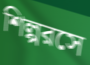
শিল্পরসে